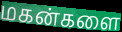
மகன்களை